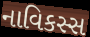
નાવિકસ્સ